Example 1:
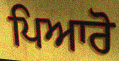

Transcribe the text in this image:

ਪਿਆਰੋ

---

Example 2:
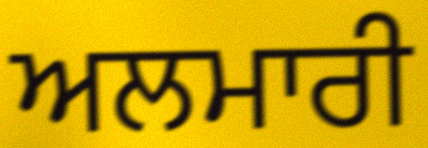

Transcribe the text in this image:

ਅਲਮਾਰੀ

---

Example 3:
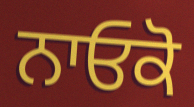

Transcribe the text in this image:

ਨਾਓਕੋ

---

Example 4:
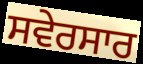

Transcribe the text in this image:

ਸਵੇਰਸਾਰ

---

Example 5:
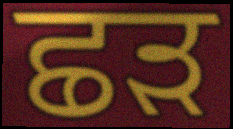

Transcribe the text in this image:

ਛੜ